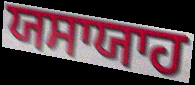
ਯਸਾਯਾਹ